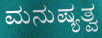
ಮನುಷ್ಯತ್ವ